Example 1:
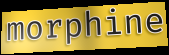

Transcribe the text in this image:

morphine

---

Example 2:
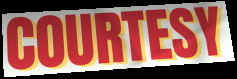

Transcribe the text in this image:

COURTESY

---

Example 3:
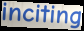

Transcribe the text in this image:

inciting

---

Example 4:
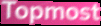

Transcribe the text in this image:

Topmost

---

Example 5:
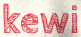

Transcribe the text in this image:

kewi